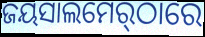
ଜୟସାଲମେର୍‌ଠାରେ